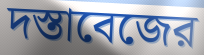
দস্তাবেজের